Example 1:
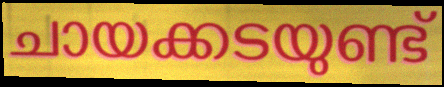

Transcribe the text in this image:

ചായക്കടയുണ്ട്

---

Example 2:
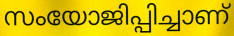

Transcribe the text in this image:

സംയോജിപ്പിച്ചാണ്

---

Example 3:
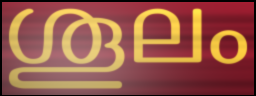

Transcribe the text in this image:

ശൂലം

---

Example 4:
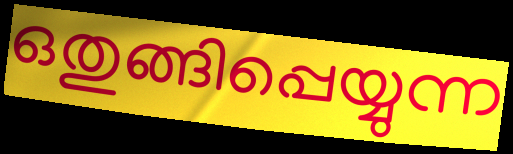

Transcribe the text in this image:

ഒതുങ്ങിപ്പെയ്യുന്ന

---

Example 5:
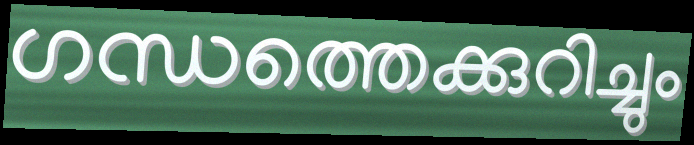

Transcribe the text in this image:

ഗന്ധത്തെക്കുറിച്ചും